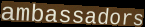
ambassadors